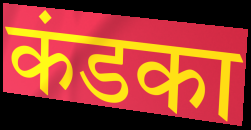
कंडका